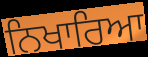
ਨਿਖਾਰਿਆ